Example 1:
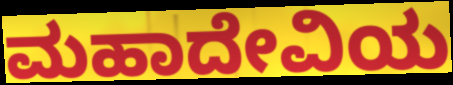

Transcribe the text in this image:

ಮಹಾದೇವಿಯ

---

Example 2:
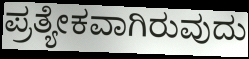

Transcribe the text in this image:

ಪ್ರತ್ಯೇಕವಾಗಿರುವುದು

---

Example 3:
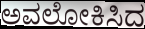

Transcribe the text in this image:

ಅವಲೋಕಿಸಿದ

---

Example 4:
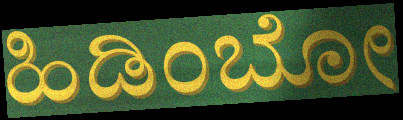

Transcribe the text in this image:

ಹಿಡಿಂಬೋ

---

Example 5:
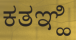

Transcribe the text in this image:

ಕತಞ್ಹಿ